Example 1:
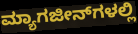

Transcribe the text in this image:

ಮ್ಯಾಗಜೀನ್‌ಗಳಲ್ಲಿ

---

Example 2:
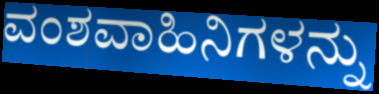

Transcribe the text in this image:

ವಂಶವಾಹಿನಿಗಳನ್ನು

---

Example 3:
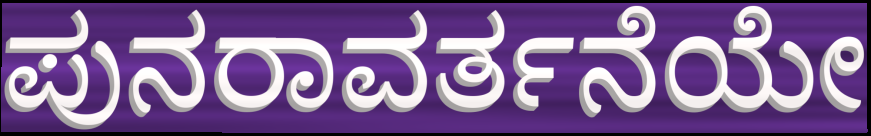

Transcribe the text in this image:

ಪುನರಾವರ್ತನೆಯೇ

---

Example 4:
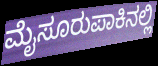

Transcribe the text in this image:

ಮೈಸೂರುಪಾಕಿನಲ್ಲಿ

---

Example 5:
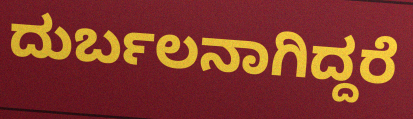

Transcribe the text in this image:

ದುರ್ಬಲನಾಗಿದ್ದರೆ